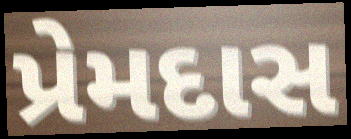
પ્રેમદાસ